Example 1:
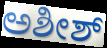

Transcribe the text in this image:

ಅಶೀಶ್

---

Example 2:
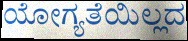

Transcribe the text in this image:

ಯೋಗ್ಯತೆಯಿಲ್ಲದ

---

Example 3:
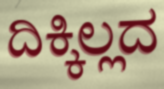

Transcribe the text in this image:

ದಿಕ್ಕಿಲ್ಲದ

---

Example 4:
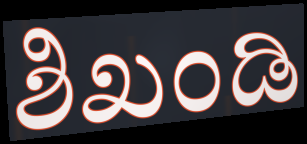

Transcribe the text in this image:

ಶಿಖಂಡಿ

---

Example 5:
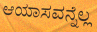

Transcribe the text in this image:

ಆಯಾಸವನ್ನೆಲ್ಲ